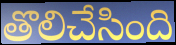
తొలిచేసింది